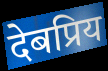
देबप्रिय